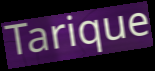
Tarique